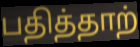
பதித்தாற்